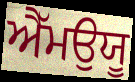
ਐੱਮਉਯੂ